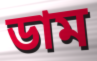
ডাম